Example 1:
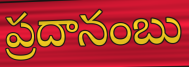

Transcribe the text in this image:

ప్రదానంబు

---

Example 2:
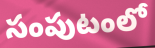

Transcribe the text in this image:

సంపుటంలో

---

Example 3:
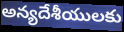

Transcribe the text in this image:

అన్యదేశీయులకు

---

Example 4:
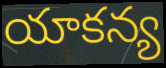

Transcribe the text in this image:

యాకన్య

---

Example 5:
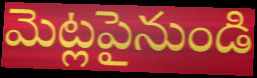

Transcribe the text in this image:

మెట్లపైనుండి